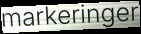
markeringer